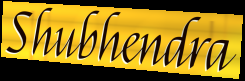
Shubhendra